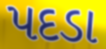
પદડા